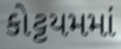
કોટ્ટયમમાં